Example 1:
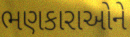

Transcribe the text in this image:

ભણકારાઓને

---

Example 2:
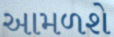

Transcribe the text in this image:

આમળશે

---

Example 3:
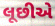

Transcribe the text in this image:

લૂછીએ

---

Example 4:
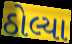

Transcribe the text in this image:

ઠોલ્યા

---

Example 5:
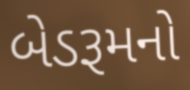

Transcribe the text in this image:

બેડરૂમનો